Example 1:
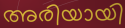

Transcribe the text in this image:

അരിയായി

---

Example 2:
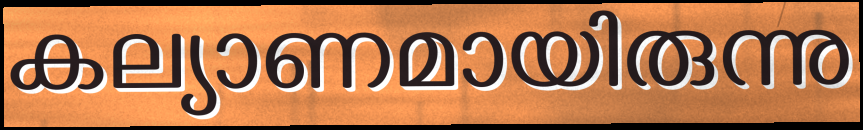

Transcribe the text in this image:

കല്യാണമായിരുന്നു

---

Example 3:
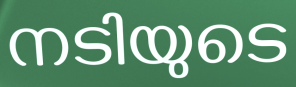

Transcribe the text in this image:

നടിയുടെ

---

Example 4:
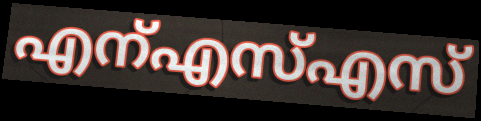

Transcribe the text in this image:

എന്എസ്എസ്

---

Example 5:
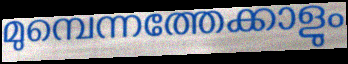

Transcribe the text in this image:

മുമ്പെന്നത്തേക്കാളും